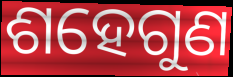
ଶହେଗୁଣ